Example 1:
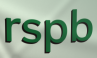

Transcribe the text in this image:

rspb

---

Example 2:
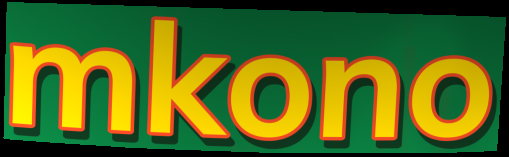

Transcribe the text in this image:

mkono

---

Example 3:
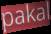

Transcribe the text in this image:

pakal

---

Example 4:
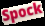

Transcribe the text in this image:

Spock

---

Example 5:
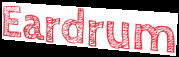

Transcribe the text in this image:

Eardrum